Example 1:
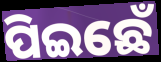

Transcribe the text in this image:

ପିଇଛେଁ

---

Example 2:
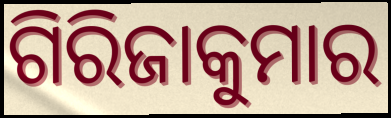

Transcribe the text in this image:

ଗିରିଜାକୁମାର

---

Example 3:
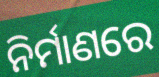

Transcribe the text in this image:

ନିର୍ମାଣରେ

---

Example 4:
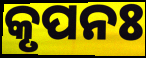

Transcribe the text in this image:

କୃପନଃ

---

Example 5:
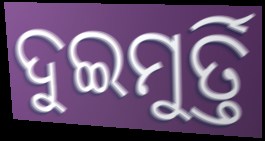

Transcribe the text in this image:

ଦୁଇମୁର୍ତ୍ତି